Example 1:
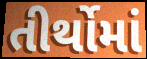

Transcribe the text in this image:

તીર્થોમાં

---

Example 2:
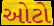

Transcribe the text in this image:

ઓટો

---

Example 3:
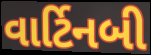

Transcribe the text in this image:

વાર્ટિનબી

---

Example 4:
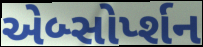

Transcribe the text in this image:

એબ્સોર્પ્શન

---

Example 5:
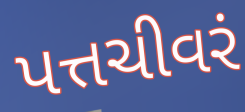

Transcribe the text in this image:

પત્તચીવરં